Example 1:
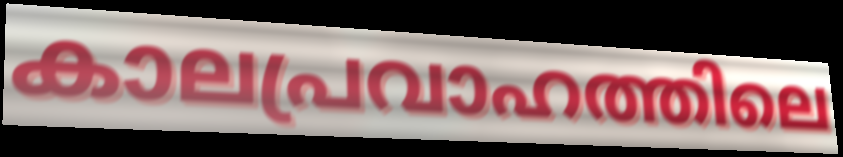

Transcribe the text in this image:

കാലപ്രവാഹത്തിലെ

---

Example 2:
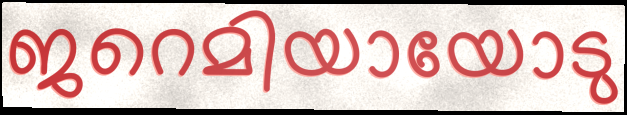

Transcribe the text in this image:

ജറെമിയായോടു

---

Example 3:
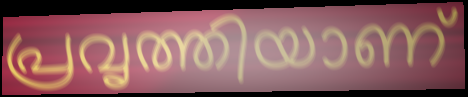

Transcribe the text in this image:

പ്രവൃത്തിയാണ്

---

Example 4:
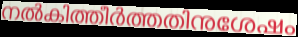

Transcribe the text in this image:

നൽകിത്തീർത്തതിനുശേഷം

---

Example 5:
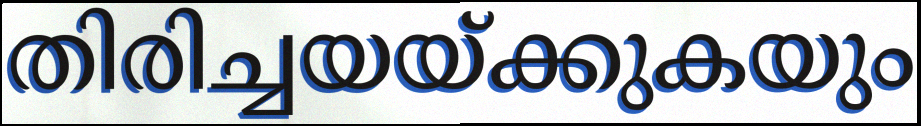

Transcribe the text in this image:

തിരിച്ചയയ്ക്കുകയും